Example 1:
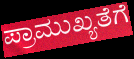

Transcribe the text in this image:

ಪ್ರಾಮುಖ್ಯತೆಗೆ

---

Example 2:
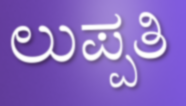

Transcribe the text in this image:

ಲುಪ್ಪತಿ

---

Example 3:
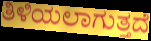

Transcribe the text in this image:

ತಿಳಿಯಲಾಗುತ್ತದೆ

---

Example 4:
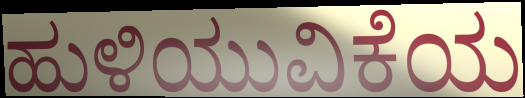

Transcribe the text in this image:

ಹುಳಿಯುವಿಕೆಯ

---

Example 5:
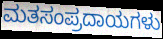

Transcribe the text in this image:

ಮತಸಂಪ್ರದಾಯಗಳು